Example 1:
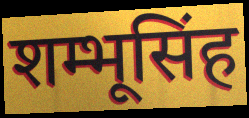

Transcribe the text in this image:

शम्भूसिंह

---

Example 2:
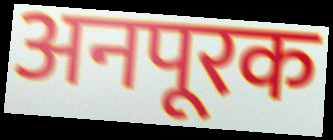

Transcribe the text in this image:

अनपूरक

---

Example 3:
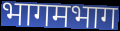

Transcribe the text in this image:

भागमभाग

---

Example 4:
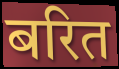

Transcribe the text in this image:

बरित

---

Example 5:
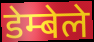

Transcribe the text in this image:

डेम्बेले